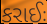
કરાઈઃ